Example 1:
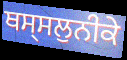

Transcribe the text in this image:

ਥਸ੍ਸਲੁਨੀਕੇ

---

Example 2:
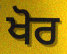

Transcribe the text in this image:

ਖੋਰ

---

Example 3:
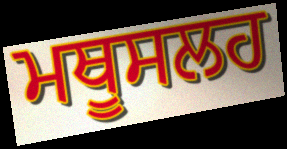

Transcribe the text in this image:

ਮਥੂਸਲਹ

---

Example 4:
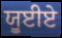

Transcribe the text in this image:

ਯੂਈਏ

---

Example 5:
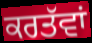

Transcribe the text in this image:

ਕਰਤੱਵਾਂ